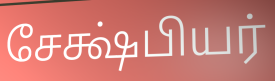
சேக்ஷ்பியர்